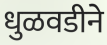
धुळवडीने